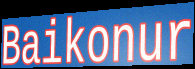
Baikonur